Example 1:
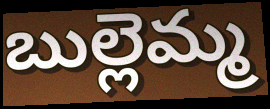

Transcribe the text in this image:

బుల్లెమ్మ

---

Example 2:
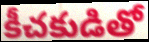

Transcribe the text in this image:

కీచకుడితో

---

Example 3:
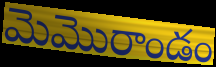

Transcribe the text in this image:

మెమొరాండం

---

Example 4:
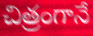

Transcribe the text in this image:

చిత్రంగానే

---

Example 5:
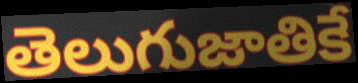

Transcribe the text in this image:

తెలుగుజాతికే